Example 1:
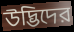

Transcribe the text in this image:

উদ্ভিদের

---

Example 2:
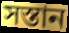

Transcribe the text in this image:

সস্তান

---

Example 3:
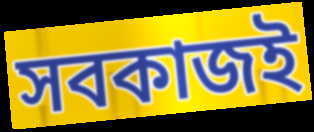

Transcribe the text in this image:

সবকাজই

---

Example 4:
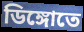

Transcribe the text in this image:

ডিঙ্গোতে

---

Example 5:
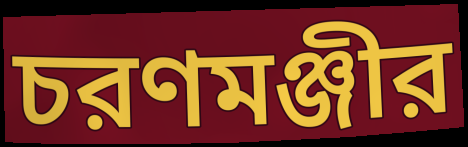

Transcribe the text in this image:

চরণমঞ্জীর